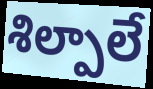
శిల్పాలే